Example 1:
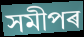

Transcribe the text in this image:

সমীপৰ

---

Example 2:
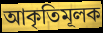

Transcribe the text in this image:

আকৃতিমূলক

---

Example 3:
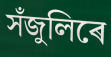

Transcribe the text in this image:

সঁজুলিৰে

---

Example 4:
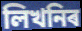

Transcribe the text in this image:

লিখনিৰ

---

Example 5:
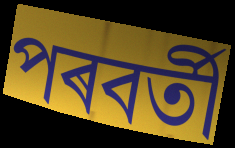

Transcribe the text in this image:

পৰবৰ্তী